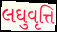
લઘુવૃત્તિ